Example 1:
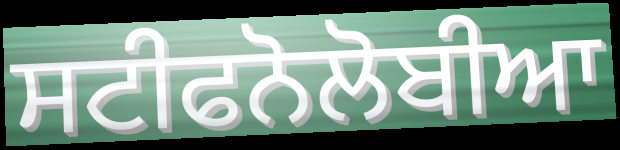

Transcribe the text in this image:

ਸਟੀਫਨੋਲੋਬੀਆ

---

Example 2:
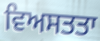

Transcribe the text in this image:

ਵਿਅਸਤਤਾ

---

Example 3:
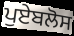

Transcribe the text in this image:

ਪੁਏਬਲੋਸ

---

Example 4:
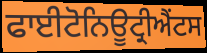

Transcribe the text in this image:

ਫਾਈਟੋਨਿਊਟ੍ਰੀਐਂਟਸ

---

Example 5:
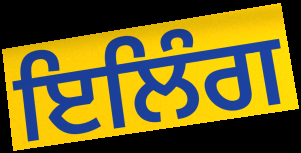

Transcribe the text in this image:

ਇਲਿੰਗ